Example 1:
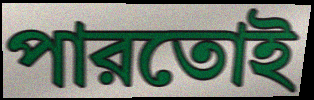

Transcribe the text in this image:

পারতোই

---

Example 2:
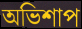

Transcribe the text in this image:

অভিশাপ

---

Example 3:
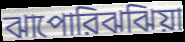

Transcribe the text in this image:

ঝাপোরিঝঝিয়া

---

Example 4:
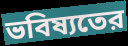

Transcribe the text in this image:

ভবিষ্যতের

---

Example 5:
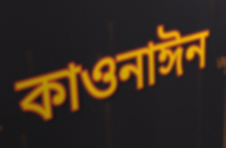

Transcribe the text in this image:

কাওনাঈন